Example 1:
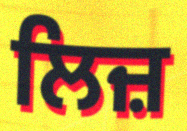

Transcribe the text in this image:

ਲਿਜ਼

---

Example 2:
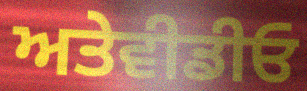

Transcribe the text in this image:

ਅਤੇਵੀਡੀਓ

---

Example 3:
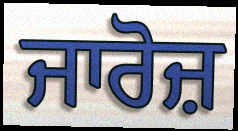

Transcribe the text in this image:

ਜਾਰੋਜ਼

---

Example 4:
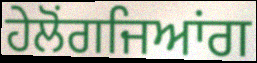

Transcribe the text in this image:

ਹੇਲੋਂਗਜਿਆਂਗ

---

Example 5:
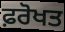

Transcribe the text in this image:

ਫ਼ਰੋਖਤ